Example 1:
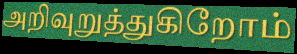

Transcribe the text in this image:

அறிவுறுத்துகிறோம்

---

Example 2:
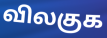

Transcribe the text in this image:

விலகுக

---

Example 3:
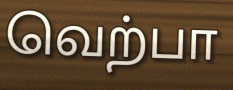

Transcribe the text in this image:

வெற்பா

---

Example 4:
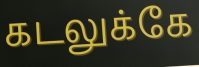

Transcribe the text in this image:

கடலுக்கே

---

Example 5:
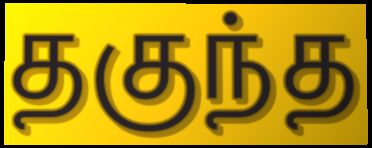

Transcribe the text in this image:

தகுந்த